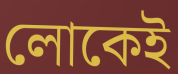
লোকেই